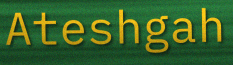
Ateshgah